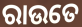
ରାଉତେ